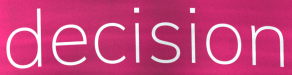
decision